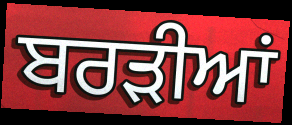
ਬਰੜੀਆਂ